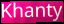
Khanty